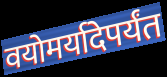
वयोमर्यादेपर्यंत